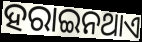
ହରାଇନଥାଏ